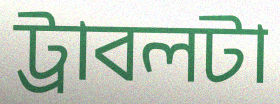
ট্রাবলটা